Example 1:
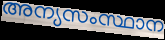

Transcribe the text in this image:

അന്യസംസ്ഥാന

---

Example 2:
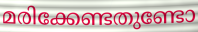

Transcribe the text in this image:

മരിക്കേണ്ടതുണ്ടോ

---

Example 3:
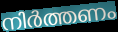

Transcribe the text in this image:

നിർത്തണം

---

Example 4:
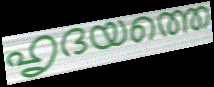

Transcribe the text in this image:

ഹൃദയത്തെ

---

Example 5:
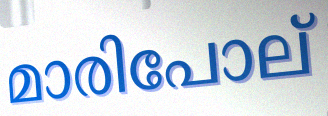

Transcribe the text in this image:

മാരിപോല്